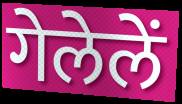
गेलेलें